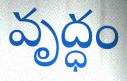
వృద్ధం